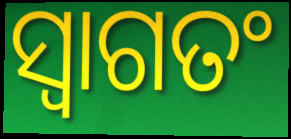
ସ୍ୱାଗତଂ